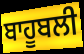
ਬਾਹੂਬਲੀ